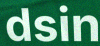
dsin